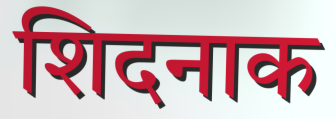
शिदनाक